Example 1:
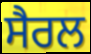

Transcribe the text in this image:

ਸੈਰਲ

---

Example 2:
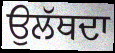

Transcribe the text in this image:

ਉਲੱਥਦਾ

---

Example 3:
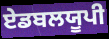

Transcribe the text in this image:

ਏਡਬਲਯੂਪੀ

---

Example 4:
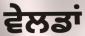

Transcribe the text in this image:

ਵੇਲਡਾਂ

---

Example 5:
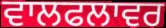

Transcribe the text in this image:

ਵਾਲਫਲਾਵਰ